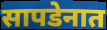
सापडेनात